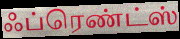
ஃப்ரெண்ட்ஸ்